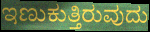
ಇಣುಕುತ್ತಿರುವುದು